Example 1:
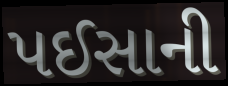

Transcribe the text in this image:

પઈસાની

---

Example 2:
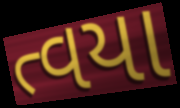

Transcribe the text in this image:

ત્વયા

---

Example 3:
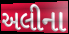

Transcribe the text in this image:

અલીના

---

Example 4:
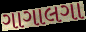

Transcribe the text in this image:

ગાગાલગા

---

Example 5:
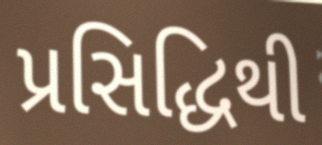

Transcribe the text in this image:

પ્રસિદ્ધિથી